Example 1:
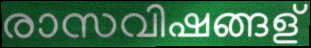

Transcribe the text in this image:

രാസവിഷങ്ങള്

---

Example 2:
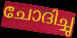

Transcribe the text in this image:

ചോദിച്ചു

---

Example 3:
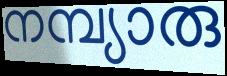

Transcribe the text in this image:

നമ്പ്യാരു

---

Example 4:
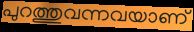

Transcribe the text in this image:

പുറത്തുവന്നവയാണ്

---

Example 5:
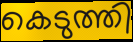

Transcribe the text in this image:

കെടുത്തി